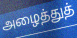
அழைத்துத்